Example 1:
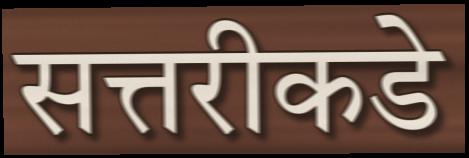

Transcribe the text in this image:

सत्तरीकडे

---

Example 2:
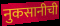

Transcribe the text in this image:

नुकसानीची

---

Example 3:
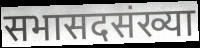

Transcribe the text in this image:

सभासदसंख्या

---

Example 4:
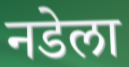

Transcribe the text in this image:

नडेला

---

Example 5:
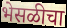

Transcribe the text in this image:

भेसळीचा